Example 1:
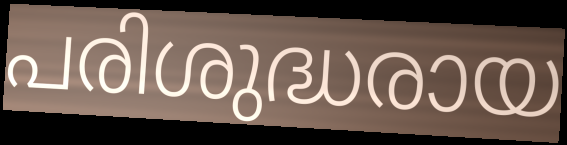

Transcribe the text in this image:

പരിശുദ്ധരായ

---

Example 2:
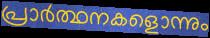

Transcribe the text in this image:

പ്രാർത്ഥനകളൊന്നും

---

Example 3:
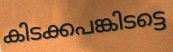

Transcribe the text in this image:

കിടക്കപങ്കിടട്ടെ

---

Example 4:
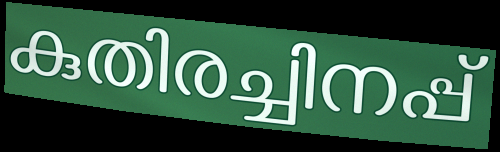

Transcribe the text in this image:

കുതിരച്ചിനപ്പ്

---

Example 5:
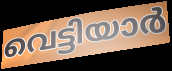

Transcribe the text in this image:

വെട്ടിയാർ